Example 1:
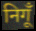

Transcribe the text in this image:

निगूँ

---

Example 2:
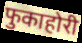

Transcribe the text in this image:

फुकाहोरी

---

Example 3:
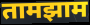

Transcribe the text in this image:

तामझाम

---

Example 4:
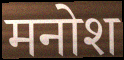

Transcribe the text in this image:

मनोश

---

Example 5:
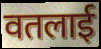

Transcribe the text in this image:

वतलाई